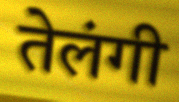
तेलंगी